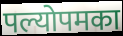
पल्योपमका